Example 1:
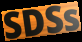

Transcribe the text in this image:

SDSs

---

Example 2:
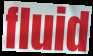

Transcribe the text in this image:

fluid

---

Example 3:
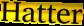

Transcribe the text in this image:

Hatter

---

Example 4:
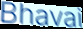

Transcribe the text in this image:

Bhavai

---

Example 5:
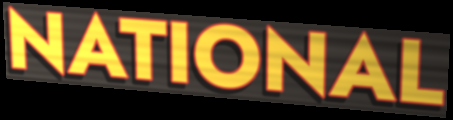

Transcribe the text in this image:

NATIONAL